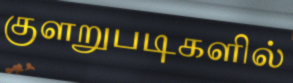
குளறுபடிகளில்